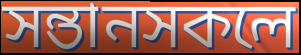
সন্তানসকলে